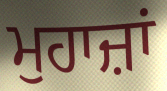
ਮੁਹਾਜ਼ਾਂ